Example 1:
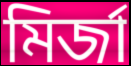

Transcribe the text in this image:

মির্জা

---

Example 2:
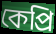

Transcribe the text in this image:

কেপ্রি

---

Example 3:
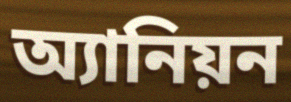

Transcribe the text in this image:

অ্যানিয়ন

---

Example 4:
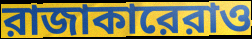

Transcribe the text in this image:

রাজাকারেরাও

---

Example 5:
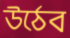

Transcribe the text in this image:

উঠেব